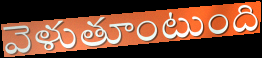
వెళుతూంటుంది